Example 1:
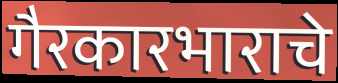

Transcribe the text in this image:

गैरकारभाराचे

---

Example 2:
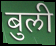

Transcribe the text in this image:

बुली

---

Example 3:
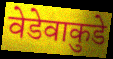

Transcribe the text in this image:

वेडेवाकुडे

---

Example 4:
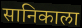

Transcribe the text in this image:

सानिकाला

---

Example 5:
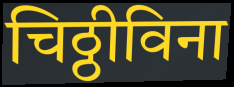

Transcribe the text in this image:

चिठ्ठीविना